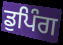
ਡੁਪਿੰਗ